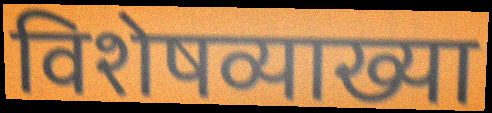
विशेषव्याख्या